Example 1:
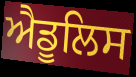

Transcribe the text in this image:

ਐਡੂਲਿਸ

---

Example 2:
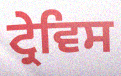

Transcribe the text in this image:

ਟ੍ਰੇਵਿਸ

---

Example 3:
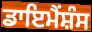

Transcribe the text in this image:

ਡਾਇਮੈਂਸ਼ੰਸ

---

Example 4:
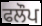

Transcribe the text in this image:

ਫਲੌਪ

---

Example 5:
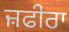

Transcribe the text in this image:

ਜ਼ਫੀਰਾ